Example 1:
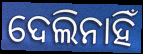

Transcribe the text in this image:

ଦେଲିନାହିଁ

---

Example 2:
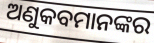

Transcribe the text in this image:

ଅଣୁକବମାନଙ୍କର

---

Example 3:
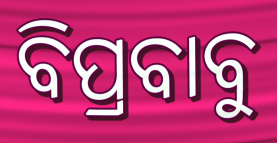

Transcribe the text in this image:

ବିପ୍ରବାବୁ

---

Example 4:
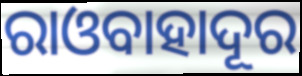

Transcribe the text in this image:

ରାଓବାହାଦୂର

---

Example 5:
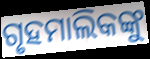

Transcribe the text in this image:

ଗୃହମାଲିକଙ୍କୁ